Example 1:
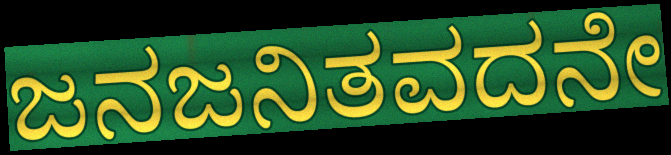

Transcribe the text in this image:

ಜನಜನಿತವದನೇ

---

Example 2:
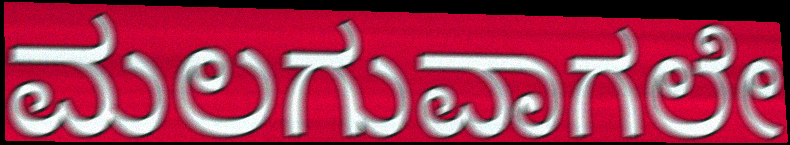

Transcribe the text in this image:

ಮಲಗುವಾಗಲೇ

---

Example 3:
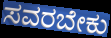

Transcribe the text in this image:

ಸವರಬೇಕು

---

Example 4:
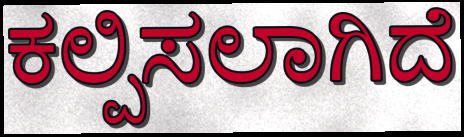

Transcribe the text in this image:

ಕಲ್ಪಿಸಲಾಗಿದೆ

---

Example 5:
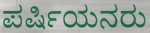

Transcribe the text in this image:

ಪರ್ಷಿಯನರು